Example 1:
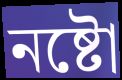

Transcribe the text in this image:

নষ্টো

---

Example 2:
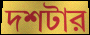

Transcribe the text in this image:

দশটার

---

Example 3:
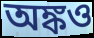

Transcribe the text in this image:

অঙ্কও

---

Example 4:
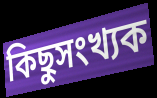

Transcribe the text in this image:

কিছুসংখ্যক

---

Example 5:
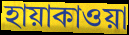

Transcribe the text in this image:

হায়াকাওয়া